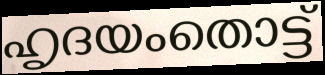
ഹൃദയംതൊട്ട്